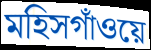
মহিসগাঁওয়ে